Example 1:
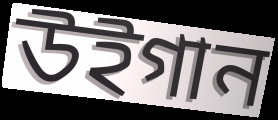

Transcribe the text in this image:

উইগান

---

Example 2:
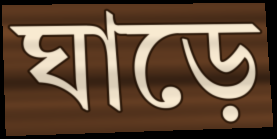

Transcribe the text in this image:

ঘাড়ে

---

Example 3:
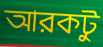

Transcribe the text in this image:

আরকটু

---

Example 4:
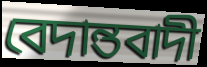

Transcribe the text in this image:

বেদান্তবাদী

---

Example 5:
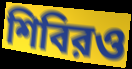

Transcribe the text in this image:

শিবিরও